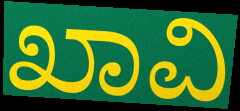
ಖಾವಿ